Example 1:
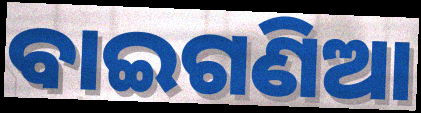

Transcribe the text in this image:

ବାଇଗଣିଆ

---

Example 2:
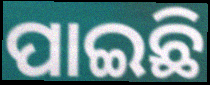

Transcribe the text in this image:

ପାଇଛି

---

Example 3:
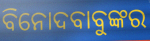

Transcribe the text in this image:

ବିନୋଦବାବୁଙ୍କର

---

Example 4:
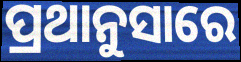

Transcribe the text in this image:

ପ୍ରଥାନୁସାରେ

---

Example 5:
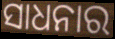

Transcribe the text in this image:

ସାଧନାର